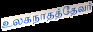
உலகநாதத்தேவர்